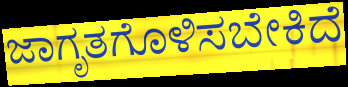
ಜಾಗೃತಗೊಳಿಸಬೇಕಿದೆ